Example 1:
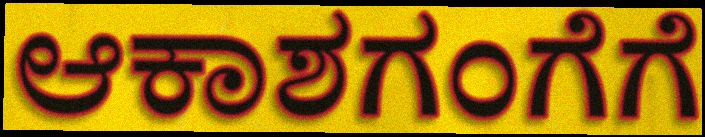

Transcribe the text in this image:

ಆಕಾಶಗಂಗೆಗೆ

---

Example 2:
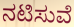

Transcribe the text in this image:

ನಟಿಸುವೆ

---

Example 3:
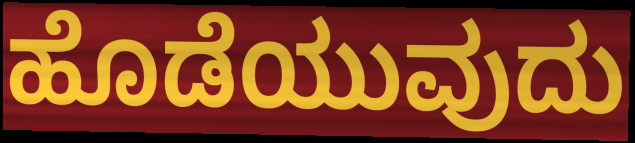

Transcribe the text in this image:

ಹೊಡೆಯುವುದು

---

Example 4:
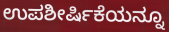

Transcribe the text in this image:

ಉಪಶೀರ್ಷಿಕೆಯನ್ನೂ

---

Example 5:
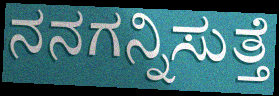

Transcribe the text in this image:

ನನಗನ್ನಿಸುತ್ತೆ